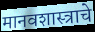
मानवशास्त्राचे